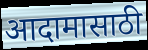
आदामासाठी